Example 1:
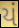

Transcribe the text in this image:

યં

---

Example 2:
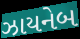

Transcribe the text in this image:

ઝાયનેબ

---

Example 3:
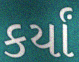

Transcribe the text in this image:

કર્યાં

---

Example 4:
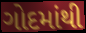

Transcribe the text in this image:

ગોદમાંથી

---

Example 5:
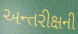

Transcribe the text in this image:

અન્તરીક્ષની